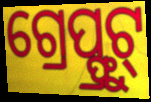
ଗ୍ରେପ୍ଫ୍ରୁଟ୍